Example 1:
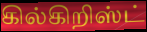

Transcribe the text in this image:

கில்கிறிஸ்ட்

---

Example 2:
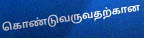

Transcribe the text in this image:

கொண்டுவருவதற்கான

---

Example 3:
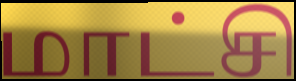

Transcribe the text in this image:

மாட்சி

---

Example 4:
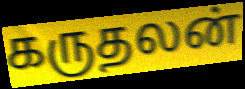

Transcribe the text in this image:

கருதலன்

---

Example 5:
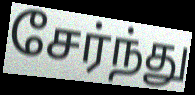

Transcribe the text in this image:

சேர்ந்து